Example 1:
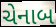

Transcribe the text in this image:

ચેનાબ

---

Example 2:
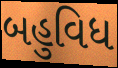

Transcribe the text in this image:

બહુવિધ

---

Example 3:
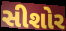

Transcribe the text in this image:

સીશોર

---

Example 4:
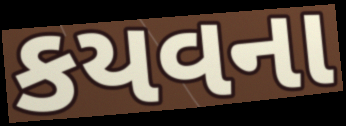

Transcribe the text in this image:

કયવના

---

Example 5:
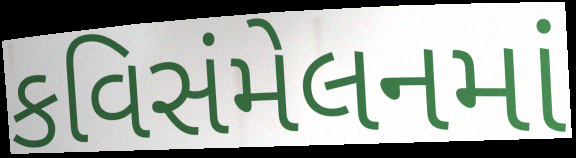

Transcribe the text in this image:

કવિસંમેલનમાં